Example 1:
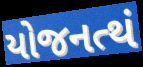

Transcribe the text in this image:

યોજનત્થં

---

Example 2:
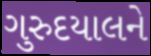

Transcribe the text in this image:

ગુરુદયાલને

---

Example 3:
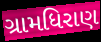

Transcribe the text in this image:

ગ્રામધિરાણ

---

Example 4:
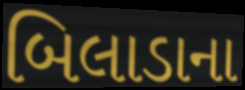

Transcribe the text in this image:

બિલાડાના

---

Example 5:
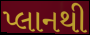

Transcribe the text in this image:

પ્લાનથી